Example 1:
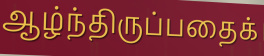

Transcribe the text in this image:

ஆழ்ந்திருப்பதைக்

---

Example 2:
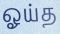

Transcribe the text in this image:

ஓய்த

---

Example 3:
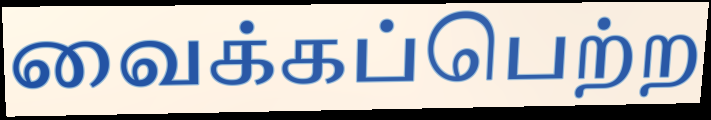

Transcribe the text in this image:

வைக்கப்பெற்ற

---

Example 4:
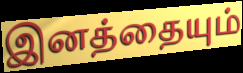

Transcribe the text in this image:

இனத்தையும்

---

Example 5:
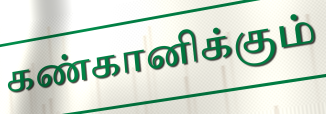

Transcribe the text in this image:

கண்கானிக்கும்